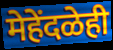
मेहेंदळेही